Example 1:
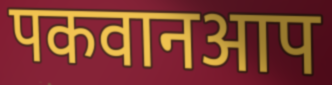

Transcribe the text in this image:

पकवानआप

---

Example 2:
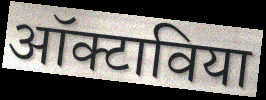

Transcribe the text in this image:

ऑक्टाविया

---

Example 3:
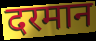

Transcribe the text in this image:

दरमान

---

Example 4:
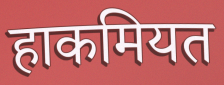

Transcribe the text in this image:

हाकमियत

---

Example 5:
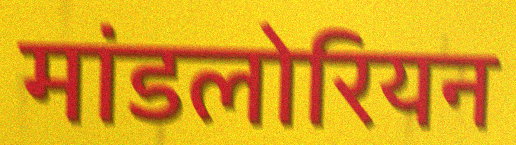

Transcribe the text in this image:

मांडलोरियन